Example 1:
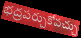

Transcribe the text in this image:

భద్రపర్చుకోవచ్చు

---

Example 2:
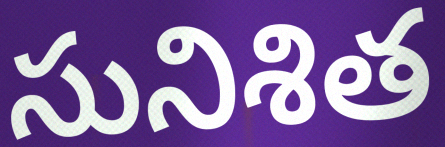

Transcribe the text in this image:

సునిశిత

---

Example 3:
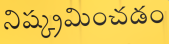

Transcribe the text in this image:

నిష్క్రమించడం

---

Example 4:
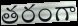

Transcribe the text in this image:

తరంగా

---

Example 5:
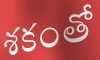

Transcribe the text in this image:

శకంతో